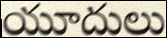
యూదులు